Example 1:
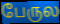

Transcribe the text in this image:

பேருல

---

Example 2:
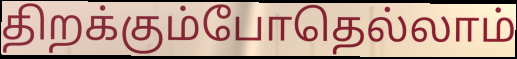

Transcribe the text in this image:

திறக்கும்போதெல்லாம்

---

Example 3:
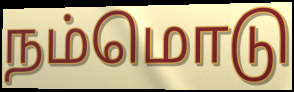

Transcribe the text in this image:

நம்மொடு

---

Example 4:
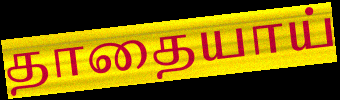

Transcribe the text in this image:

தாதையாய்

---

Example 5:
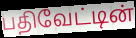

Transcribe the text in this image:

பதிவேட்டின்